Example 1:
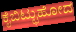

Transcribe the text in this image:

ಕೈಬಿಟ್ಟುಹೋದ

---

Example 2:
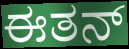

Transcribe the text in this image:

ಈತನ್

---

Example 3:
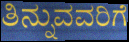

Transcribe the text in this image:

ತಿನ್ನುವವರಿಗೆ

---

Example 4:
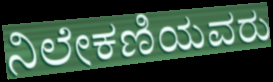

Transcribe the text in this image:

ನಿಲೇಕಣಿಯವರು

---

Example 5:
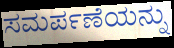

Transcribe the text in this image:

ಸಮರ್ಪಣೆಯನ್ನು